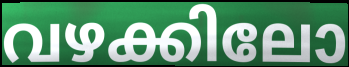
വഴക്കിലോ